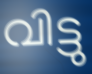
വിട്ടു